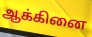
ஆக்கினை